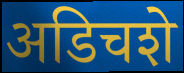
अडिचशे